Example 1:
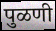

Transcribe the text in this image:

पुळणी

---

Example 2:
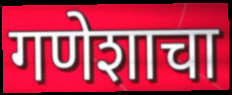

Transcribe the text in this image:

गणेशाचा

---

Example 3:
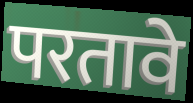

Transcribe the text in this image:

परतावे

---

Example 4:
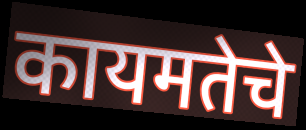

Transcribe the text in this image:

कायमतेचे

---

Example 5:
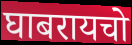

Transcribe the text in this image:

घाबरायचो